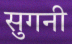
सुगनी